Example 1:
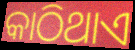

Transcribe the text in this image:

କାଠିଥାଏ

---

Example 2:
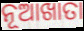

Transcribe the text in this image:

ନୂଆଖାତା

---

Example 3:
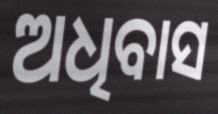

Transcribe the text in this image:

ଅଧିବାସ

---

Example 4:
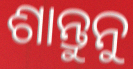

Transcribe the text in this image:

ଶାନ୍ତୁନୁ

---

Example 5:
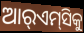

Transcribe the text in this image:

ଆର୍‌ଏମ୍‌ସିକୁ